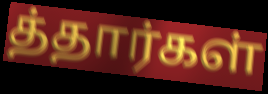
த்தார்கள்